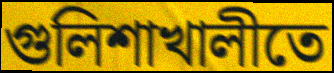
গুলিশাখালীতে